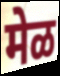
मेळ